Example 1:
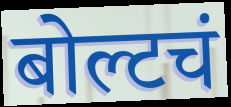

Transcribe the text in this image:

बोल्टचं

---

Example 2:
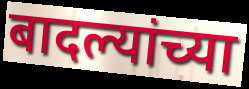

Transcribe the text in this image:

बादल्यांच्या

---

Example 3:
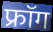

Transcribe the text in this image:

फ्रॉग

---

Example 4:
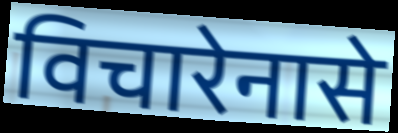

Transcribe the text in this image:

विचारेनासे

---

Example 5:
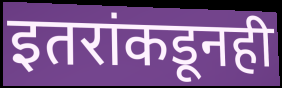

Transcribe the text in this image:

इतरांकडूनही